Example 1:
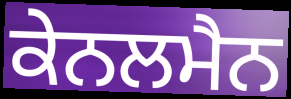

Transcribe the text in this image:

ਕੇਨਲਮੈਨ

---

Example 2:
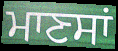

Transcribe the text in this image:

ਮਾਣਸਾਂ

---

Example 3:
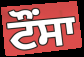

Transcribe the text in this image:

ਟੌਂਸਾ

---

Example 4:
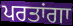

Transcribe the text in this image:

ਪਰਤਾਂਗਾ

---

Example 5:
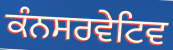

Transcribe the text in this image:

ਕੰਨਸਰਵੇਟਿਵ